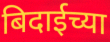
बिदाईच्या